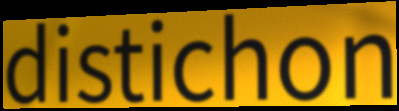
distichon